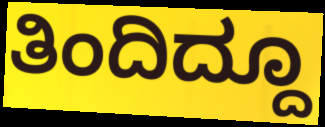
ತಿಂದಿದ್ದೂ